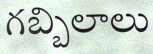
గబ్బిలాలు